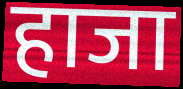
हाजा